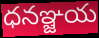
ధనఞ్జయ